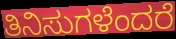
ತಿನಿಸುಗಳೆಂದರೆ